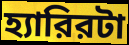
হ্যারিরটা